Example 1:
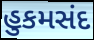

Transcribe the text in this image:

હુકમસંદ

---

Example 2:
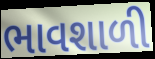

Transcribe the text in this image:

ભાવશાળી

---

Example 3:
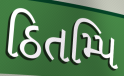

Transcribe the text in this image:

ઠિતમ્પિ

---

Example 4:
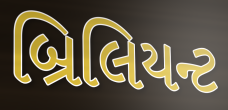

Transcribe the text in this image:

બ્રિલિયન્ટ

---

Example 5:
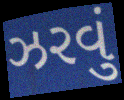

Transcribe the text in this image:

ઝરવું